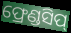
ଫ୍ରେଣ୍ଡସିପ୍